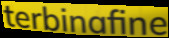
terbinafine